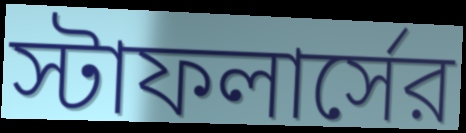
স্টাফলার্সের